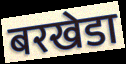
बरखेडा